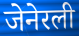
जेनेरली